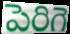
పెరిగె